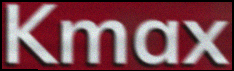
Kmax